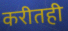
करीतही